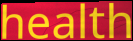
health